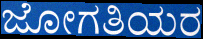
ಜೋಗತಿಯರ